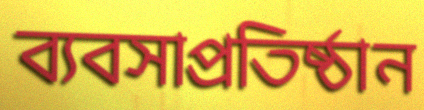
ব্যবসাপ্রতিষ্ঠান